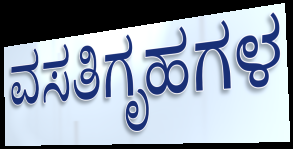
ವಸತಿಗೃಹಗಳ